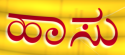
ಹಾಸು